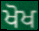
ਖੋਖ